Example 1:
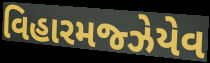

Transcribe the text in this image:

વિહારમજ્ઝેયેવ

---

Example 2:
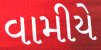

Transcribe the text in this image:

વામીયે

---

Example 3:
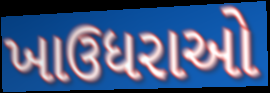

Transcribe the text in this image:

ખાઉધરાઓ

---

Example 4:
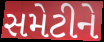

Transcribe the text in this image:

સમેટીને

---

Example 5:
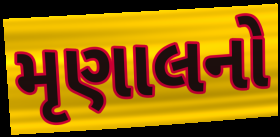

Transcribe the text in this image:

મૃણાલનો